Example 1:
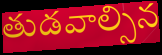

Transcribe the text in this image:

తుడవాల్సిన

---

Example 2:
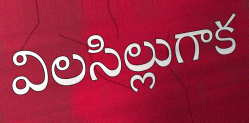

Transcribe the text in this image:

విలసిల్లుగాక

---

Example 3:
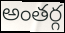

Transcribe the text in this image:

అంతర్గ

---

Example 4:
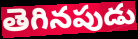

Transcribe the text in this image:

తెగినపుడు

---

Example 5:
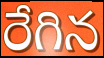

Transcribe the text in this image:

రేగిన